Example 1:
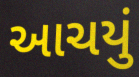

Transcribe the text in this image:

આચયું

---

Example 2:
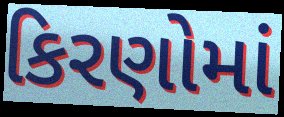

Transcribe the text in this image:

કિરણોમાં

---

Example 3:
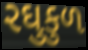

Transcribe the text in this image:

રઘુકુળ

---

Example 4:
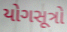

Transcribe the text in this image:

યોગસૂત્રો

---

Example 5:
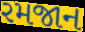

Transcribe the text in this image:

રમજાન